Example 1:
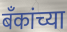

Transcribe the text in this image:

बॅंकांच्या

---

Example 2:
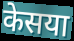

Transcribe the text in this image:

केसया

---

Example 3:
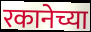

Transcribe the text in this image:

रकानेच्या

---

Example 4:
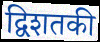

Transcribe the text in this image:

द्विशतकी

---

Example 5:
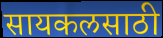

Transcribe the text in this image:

सायकलसाठी